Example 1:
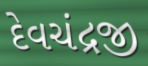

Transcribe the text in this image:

દેવચંદ્રજી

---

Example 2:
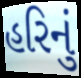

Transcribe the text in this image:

હરિનું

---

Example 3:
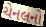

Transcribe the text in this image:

ચેનલનો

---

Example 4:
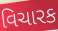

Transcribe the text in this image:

વિચારક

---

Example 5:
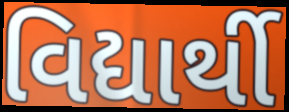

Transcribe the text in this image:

વિદ્યાર્થી